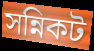
সন্নিকট